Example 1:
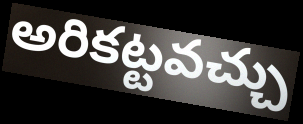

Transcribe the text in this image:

అరికట్టవచ్చు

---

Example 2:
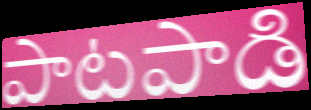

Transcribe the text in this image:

పాటపాడి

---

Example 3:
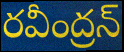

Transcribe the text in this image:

రవీంద్రన్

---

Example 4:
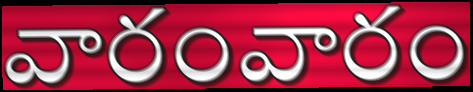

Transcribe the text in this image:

వారంవారం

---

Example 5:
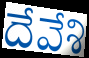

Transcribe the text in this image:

దేవేశి